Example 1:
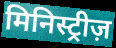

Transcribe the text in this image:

मिनिस्ट्रीज़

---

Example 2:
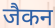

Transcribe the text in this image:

जैकन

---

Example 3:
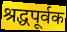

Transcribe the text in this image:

श्रद्धपूर्वक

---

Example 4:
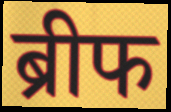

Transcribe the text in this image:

ब्रीफ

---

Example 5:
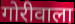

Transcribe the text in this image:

गोरीवाला